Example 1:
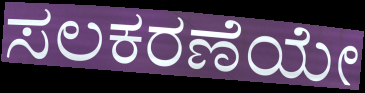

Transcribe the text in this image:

ಸಲಕರಣೆಯೇ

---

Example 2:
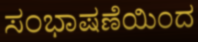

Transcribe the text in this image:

ಸಂಭಾಷಣೆಯಿಂದ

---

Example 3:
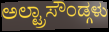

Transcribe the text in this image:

ಅಲ್ಟ್ರಾಸೌಂಡ್ಗಳು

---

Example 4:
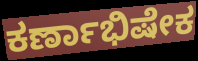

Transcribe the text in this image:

ಕರ್ಣಾಭಿಷೇಕ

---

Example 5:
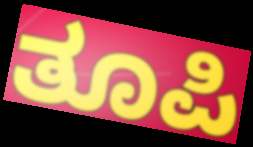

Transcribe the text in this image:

ತೂಪಿ